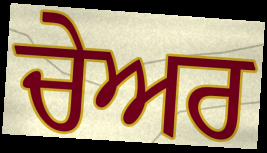
ਚੇਅਰ